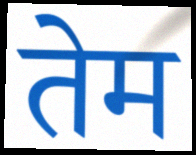
तेम